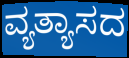
ವ್ಯತ್ಯಾಸದ